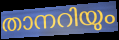
താനറിയും